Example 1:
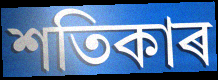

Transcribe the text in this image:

শতিকাৰ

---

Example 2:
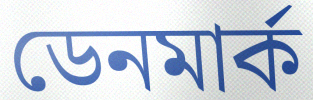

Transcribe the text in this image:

ডেনমাৰ্ক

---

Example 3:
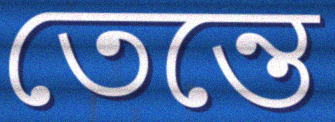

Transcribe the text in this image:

তেন্তে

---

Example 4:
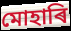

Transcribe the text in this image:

মোহাৰি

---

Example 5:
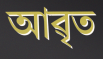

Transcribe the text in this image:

আৱৃত